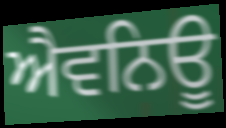
ਐਵਨਿਊ